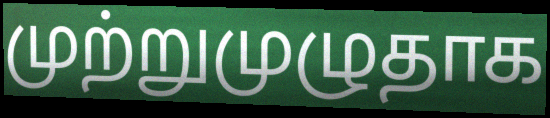
முற்றுமுழுதாக